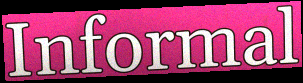
Informal